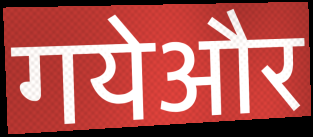
गयेऔर